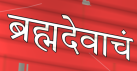
ब्रह्मदेवाचं